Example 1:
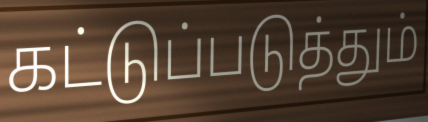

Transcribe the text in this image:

கட்டுப்படுத்தும்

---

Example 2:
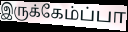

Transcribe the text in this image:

இருக்கேம்ப்பா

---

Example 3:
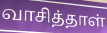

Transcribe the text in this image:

வாசித்தாள்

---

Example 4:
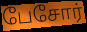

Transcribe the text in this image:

பேசோர்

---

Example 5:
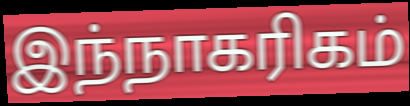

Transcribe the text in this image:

இந்நாகரிகம்